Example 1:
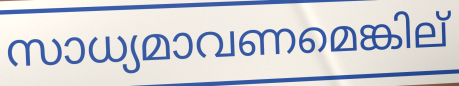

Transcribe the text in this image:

സാധ്യമാവണമെങ്കില്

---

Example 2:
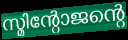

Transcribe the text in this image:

സ്മിന്റോജന്റെ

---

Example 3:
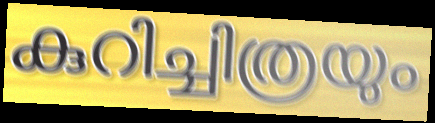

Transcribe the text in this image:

കുറിച്ചിത്രയും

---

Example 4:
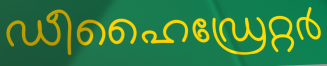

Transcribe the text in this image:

ഡീഹൈഡ്രേറ്റർ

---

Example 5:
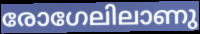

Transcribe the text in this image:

രോഗേലിലാണു